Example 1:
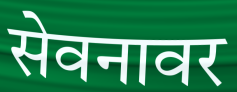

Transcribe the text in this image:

सेवनावर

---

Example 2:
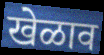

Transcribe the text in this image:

खेळाव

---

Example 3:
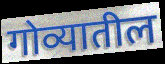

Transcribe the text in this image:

गोव्यातील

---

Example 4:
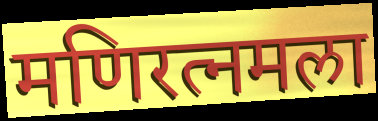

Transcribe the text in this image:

मणिरत्नमला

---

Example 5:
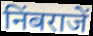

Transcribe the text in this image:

निंबराजें